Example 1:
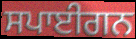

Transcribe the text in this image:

ਸਪਾਈਗਨ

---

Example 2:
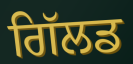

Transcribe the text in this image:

ਗਿੱਲਡ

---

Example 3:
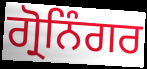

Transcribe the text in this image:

ਗ੍ਰੋਨਿੰਗਰ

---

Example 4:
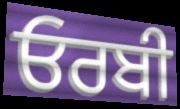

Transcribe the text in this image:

ਓਰਬੀ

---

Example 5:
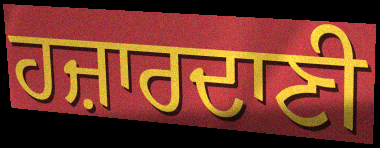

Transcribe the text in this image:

ਹਜ਼ਾਰਦਾਣੀ